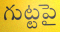
గుట్టపై